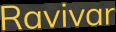
Ravivar